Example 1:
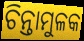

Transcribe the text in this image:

ଚିନ୍ତାମୁଳକ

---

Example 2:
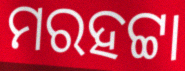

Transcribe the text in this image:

ମରହଟ୍ଟା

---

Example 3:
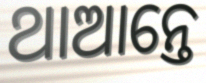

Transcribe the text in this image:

ଥାଆନ୍ତେ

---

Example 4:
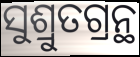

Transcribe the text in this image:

ସୁଶ୍ରୁତଗ୍ରନ୍ଥ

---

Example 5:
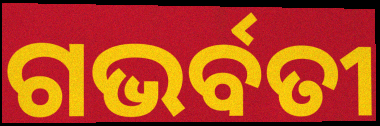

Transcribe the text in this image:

ଗଭର୍ବତୀ